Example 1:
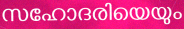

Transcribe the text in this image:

സഹോദരിയെയും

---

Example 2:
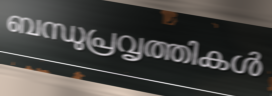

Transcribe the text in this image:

ബന്ധുപ്രവൃത്തികൾ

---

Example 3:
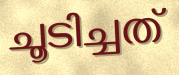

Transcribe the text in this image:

ചൂടിച്ചത്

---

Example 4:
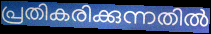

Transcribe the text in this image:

പ്രതികരിക്കുന്നതിൽ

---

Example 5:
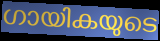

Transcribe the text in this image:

ഗായികയുടെ